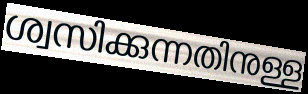
ശ്വസിക്കുന്നതിനുള്ള